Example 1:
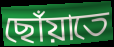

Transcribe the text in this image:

ছোঁয়াতে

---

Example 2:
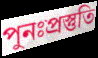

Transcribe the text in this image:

পুনঃপ্রস্তুতি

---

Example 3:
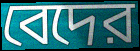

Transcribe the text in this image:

বেদের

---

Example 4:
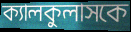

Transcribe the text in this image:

ক্যালকুলাসকে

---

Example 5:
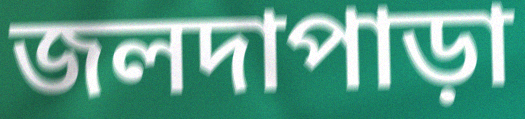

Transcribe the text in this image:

জলদাপাড়া